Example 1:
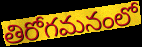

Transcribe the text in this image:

తిరోగమనంలో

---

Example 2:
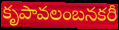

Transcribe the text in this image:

కృపావలంబనకరీ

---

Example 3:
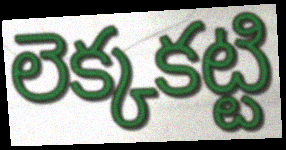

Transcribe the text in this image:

లెక్కకట్టి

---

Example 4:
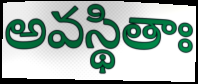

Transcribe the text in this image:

అవస్థితాః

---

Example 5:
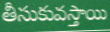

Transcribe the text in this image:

తీసుకువస్తాయి